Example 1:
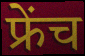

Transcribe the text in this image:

फ्रेंच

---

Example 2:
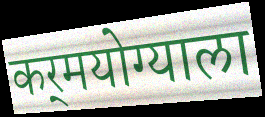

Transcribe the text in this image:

कर्मयोग्याला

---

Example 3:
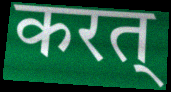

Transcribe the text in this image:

करत्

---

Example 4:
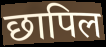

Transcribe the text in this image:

छापिल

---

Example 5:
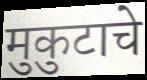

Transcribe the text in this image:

मुकुटाचे